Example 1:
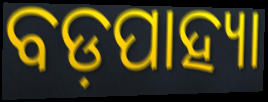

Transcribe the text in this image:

ବଡ଼ପାହ୍ୟା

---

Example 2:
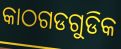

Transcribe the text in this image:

କାଠଗଡଗୁଡିକ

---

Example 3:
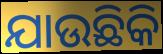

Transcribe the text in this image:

ଯାଉଛିକି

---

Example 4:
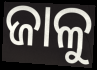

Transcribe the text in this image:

ଜାଳୁ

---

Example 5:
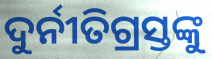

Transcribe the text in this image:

ଦୁର୍ନୀତିଗ୍ରସ୍ତଙ୍କୁ